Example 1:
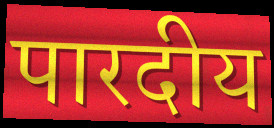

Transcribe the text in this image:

पारदीय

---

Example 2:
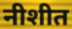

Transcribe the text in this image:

नीशीत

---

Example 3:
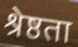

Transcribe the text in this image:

श्रेष्ठता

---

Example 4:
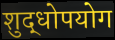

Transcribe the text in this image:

शुद्धोपयोग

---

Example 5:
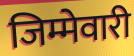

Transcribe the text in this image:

जिम्मेवारी